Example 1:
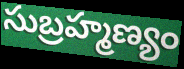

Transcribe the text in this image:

సుబ్రహ్మణ్యం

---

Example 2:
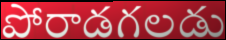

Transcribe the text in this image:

పోరాడగలడు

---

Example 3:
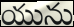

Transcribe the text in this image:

యును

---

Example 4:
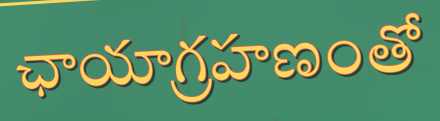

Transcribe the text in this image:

ఛాయాగ్రహణంతో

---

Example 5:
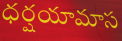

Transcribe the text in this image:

ధర్షయామాస